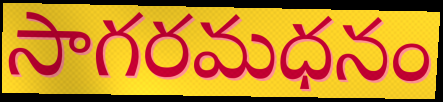
సాగరమధనం